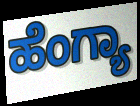
ಹೆಂಗ್ಯಾ